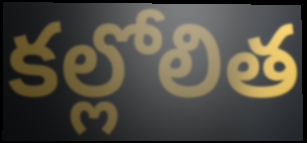
కల్లోలిత